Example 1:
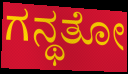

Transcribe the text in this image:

ಗನ್ಥತೋ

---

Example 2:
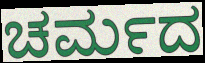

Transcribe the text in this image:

ಚರ್ಮದ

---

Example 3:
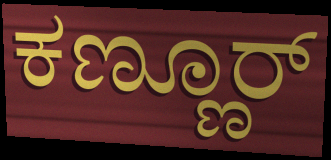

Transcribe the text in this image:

ಕಣ್ಣೂರ್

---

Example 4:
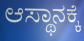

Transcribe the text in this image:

ಆಸ್ಥಾನಕ್ಕೆ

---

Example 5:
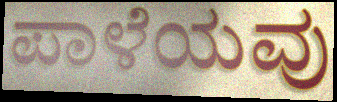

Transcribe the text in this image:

ಪಾಳೆಯವು